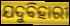
ଯଦୁବିହାରୀ